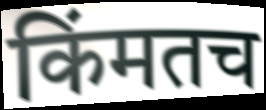
किंमतच